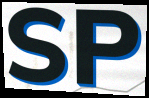
SP